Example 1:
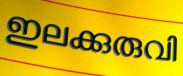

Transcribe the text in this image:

ഇലക്കുരുവി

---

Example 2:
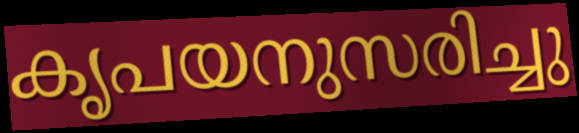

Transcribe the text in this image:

കൃപയനുസരിച്ചു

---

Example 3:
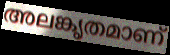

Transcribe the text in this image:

അലങ്കൃതമാണ്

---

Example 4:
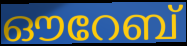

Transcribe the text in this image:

ഔറേബ്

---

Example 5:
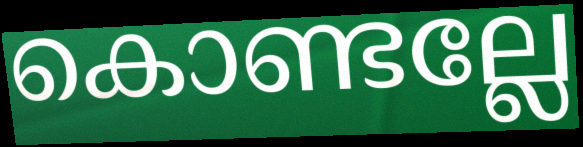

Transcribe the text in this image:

കൊണ്ടല്ലേ